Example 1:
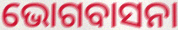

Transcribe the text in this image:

ଭୋଗବାସନା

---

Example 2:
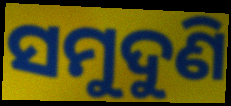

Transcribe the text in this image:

ସମୁଦୁଣି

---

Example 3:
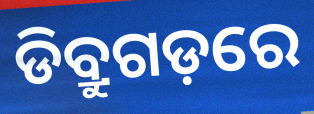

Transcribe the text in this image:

ଡିବ୍ରୁଗଡ଼ରେ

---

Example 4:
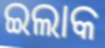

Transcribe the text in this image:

ଇଲାକ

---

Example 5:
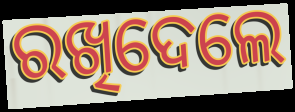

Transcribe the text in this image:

ରଖିଦେଲେ